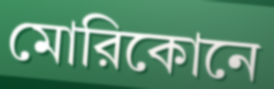
মোরিকোনে